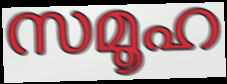
സമൂഹ